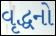
વૃદ્ધનો